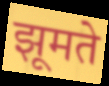
झूमते